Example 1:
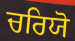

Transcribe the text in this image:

ਚਰਿਯੋ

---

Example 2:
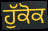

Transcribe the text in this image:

ਹੁੱਕੋਕ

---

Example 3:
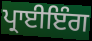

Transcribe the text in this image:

ਪ੍ਰਾਈਇੰਗ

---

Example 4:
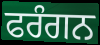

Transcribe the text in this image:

ਫਰੰਗਨ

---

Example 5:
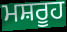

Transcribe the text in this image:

ਮਸ਼ਰੂਹ